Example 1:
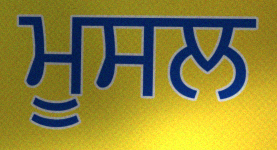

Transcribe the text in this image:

ਮੂਸਲ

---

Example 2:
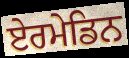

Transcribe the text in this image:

ਏਰਮੇਡਿਨ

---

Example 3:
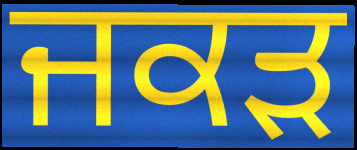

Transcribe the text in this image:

ਜਕਡ਼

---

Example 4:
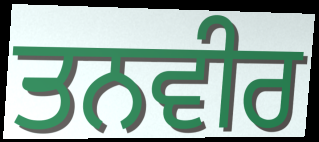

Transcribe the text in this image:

ਤਨਵੀਰ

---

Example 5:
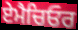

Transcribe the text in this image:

ਏਮੈਚਿਓਰ